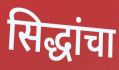
सिद्धांचा